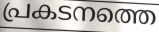
പ്രകടനത്തെ